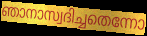
ഞാനാസ്വദിച്ചതെന്നോ